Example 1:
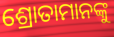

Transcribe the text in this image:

ଶ୍ରୋତାମାନଙ୍କୁ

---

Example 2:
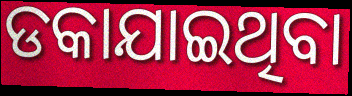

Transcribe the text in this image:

ଡକାଯାଇଥିବା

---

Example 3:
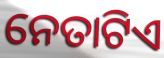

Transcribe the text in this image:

ନେତାଟିଏ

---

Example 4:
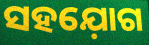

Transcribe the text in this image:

ସହଯ଼ୋଗ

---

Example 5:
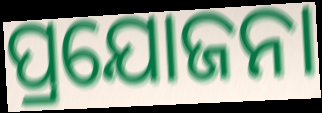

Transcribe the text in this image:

ପ୍ରଯୋଜନା